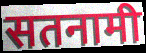
सतनामी